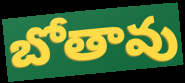
బోతావు